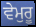
ਵੇਮੁਰੂ